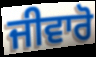
ਜੀਵਾਰੋ